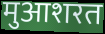
मुआशरत